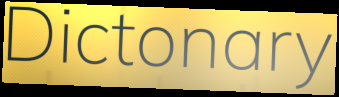
Dictonary